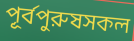
পূৰ্বপুৰুষসকল